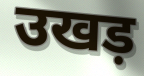
उखड़